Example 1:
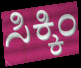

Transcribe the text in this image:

ಸಿಕ್ಕಿಂ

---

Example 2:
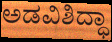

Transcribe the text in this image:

ಅಡವಿಶಿದ್ಧಾ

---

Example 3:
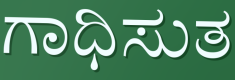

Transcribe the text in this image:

ಗಾಧಿಸುತ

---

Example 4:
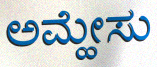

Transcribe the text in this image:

ಅಮ್ಹೇಸು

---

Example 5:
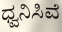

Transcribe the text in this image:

ಧ್ವನಿಸಿವೆ